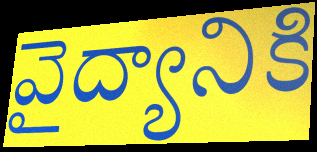
వైద్యానికి